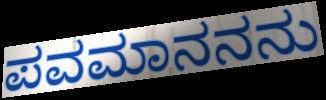
ಪವಮಾನನನು